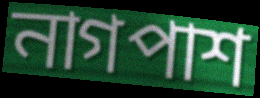
নাগপাশ